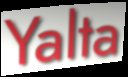
Yalta